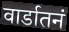
वार्डातनं